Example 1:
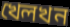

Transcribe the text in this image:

খেলখন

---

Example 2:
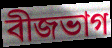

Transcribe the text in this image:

বীজভাগ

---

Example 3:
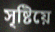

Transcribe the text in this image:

সৃষ্টিয়ে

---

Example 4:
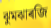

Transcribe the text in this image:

ঝুমঝাৰজি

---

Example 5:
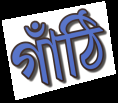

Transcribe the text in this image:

গাঁঠি